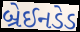
બ્રેઈનડેડ